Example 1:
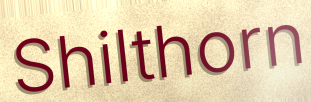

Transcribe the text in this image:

Shilthorn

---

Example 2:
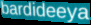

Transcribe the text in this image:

bardideeya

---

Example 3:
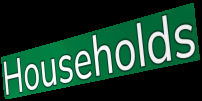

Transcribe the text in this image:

Households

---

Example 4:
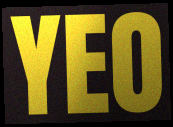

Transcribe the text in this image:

YEO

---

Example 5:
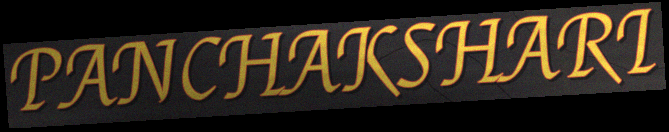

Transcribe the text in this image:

PANCHAKSHARI